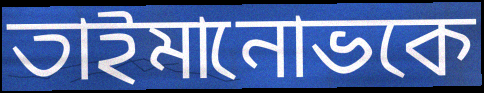
তাইমানোভকে